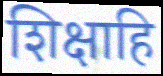
शिक्षाहि